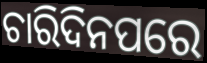
ଚାରିଦିନପରେ